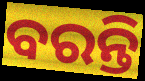
ବରନ୍ତି